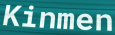
Kinmen